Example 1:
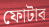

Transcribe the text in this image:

ফোটাব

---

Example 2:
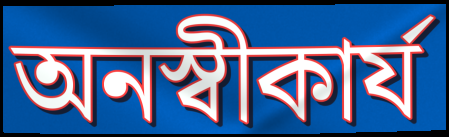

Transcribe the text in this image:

অনস্বীকার্য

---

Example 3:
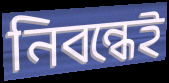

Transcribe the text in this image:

নিবন্ধেই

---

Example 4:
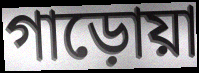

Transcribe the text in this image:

গাড়োয়া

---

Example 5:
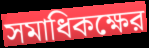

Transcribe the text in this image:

সমাধিকক্ষের